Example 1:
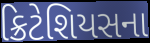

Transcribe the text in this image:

ક્રિટેશિયસના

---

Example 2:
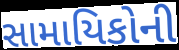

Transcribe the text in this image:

સામાયિકોની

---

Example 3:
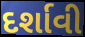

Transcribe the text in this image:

દર્શાવી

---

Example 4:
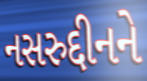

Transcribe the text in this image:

નસરુદ્દીનને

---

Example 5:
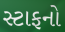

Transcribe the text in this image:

સ્ટાફનો